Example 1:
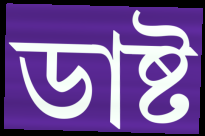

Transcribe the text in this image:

ডাষ্ট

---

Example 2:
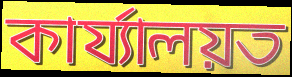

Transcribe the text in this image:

কাৰ্য্যালয়ত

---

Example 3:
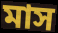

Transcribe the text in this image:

মাস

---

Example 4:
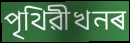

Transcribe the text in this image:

পৃথিৱীখনৰ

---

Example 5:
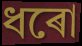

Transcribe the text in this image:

ধৰো